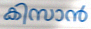
കിസാൻ